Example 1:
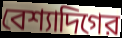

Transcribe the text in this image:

বেশ্যাদিগের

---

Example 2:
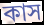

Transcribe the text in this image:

কাস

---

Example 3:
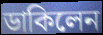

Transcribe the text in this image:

ডাকিলেন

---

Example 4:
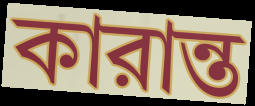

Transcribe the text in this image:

কারান্ত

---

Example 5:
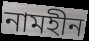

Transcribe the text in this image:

নামহীন